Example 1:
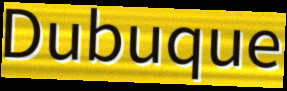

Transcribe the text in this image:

Dubuque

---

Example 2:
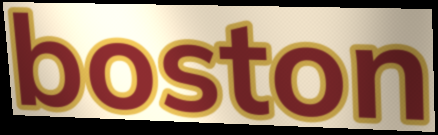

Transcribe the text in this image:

boston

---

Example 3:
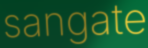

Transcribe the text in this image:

sangate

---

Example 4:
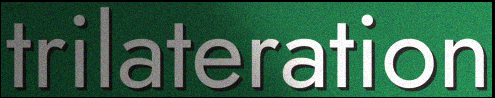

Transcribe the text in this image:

trilateration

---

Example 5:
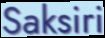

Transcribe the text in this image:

Saksiri